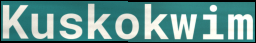
Kuskokwim